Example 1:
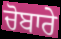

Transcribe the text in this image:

ਚੋਬਾਰੇ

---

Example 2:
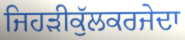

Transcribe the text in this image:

ਜਿਹੜੀਕੁੱਲਕਰਜੇਦਾ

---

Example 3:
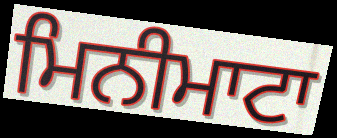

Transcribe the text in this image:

ਮਿਨੀਮਾਟਾ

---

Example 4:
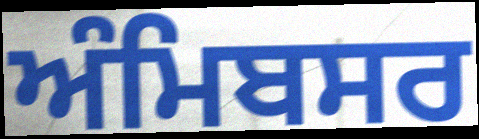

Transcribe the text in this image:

ਅੰਮਿਬਸਰ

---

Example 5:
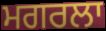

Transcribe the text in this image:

ਮਗਰਲਾ